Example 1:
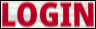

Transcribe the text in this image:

LOGIN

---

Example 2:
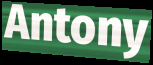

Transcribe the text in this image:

Antony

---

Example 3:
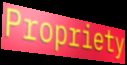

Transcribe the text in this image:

Propriety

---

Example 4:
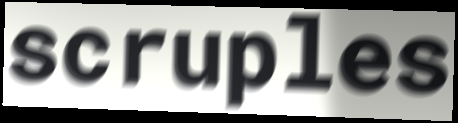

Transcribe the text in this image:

scruples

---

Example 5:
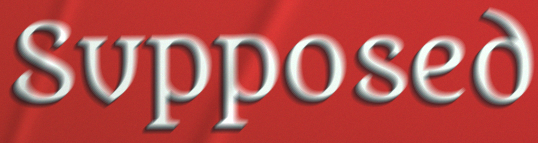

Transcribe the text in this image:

Supposed